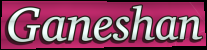
Ganeshan